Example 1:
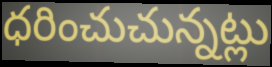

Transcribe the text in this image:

ధరించుచున్నట్లు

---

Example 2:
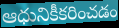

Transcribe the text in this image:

ఆధునికీకరించడం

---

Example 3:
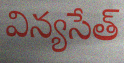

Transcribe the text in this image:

విన్యసేత్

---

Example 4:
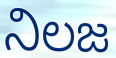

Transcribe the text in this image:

నిలజ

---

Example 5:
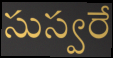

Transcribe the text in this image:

సుస్వరే